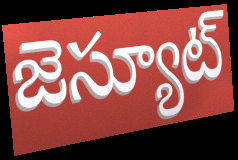
జెస్యూట్